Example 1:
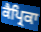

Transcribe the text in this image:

ਕੈਪ੍ਰਿਕਾ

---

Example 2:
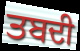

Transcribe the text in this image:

ਤਬਦੀ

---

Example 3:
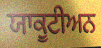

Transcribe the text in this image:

ਯਾਕੂਟੀਅਨ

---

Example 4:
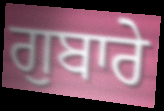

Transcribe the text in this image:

ਗੁਬਾਰੇ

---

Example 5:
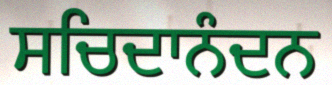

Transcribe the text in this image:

ਸਚਿਦਾਨੰਦਨ